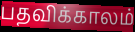
பதவிக்காலம்